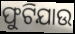
ଫୁଟିଯାଉ